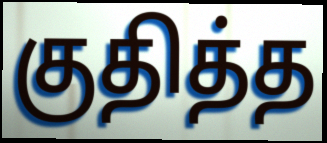
குதித்த